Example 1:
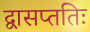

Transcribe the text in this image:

द्वासप्ततिः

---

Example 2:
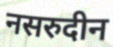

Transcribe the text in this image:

नसरुदीन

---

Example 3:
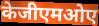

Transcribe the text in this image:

केजीएमओए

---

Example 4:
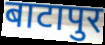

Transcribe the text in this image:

बाटापुर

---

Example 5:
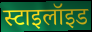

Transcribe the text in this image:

स्टाइलॉइड